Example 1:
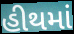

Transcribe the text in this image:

હીથમાં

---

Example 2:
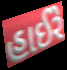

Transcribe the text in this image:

હાઈરે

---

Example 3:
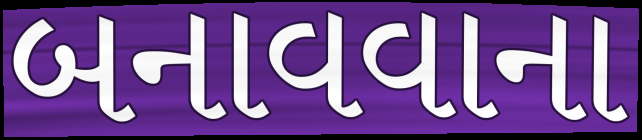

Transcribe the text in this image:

બનાવવાના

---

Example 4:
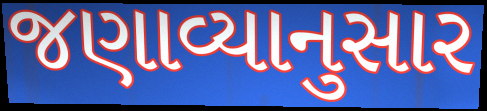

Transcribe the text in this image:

જણાવ્યાનુસાર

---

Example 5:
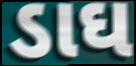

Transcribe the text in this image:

ડાઘ